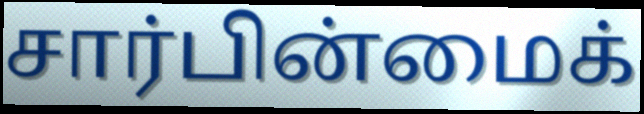
சார்பின்மைக்